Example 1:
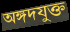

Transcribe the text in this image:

অঙ্গদযুক্ত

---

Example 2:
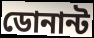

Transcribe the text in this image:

ডোনান্ট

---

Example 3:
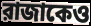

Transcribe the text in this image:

রাজাকেও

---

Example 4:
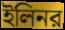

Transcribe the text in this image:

ইলিনর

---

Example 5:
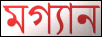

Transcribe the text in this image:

মগ্যান